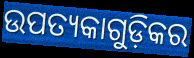
ଉପତ୍ୟକାଗୁଡ଼ିକର